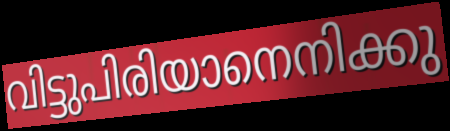
വിട്ടുപിരിയാനെനിക്കു